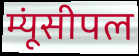
म्यूंसीपल